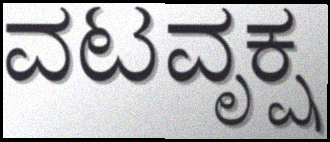
ವಟವೃಕ್ಷ